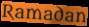
Ramadan